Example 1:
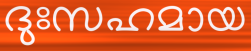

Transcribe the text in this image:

ദുഃസഹമായ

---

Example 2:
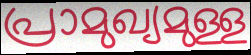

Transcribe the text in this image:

പ്രാമുഖ്യമുള്ള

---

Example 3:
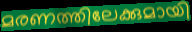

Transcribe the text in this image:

മരണത്തിലേക്കുമായി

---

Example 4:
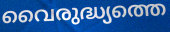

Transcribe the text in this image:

വൈരുദ്ധ്യത്തെ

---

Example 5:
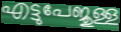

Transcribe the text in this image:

എട്ടുപേജുള്ള